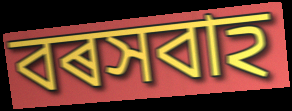
বৰসবাহ